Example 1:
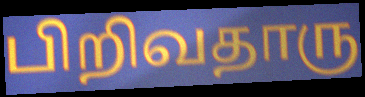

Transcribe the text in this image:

பிறிவதாரு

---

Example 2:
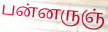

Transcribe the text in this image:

பன்னருஞ்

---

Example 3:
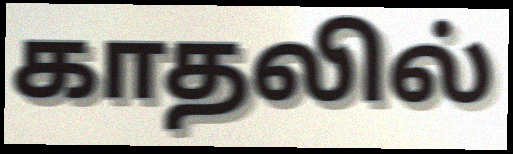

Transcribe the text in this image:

காதலில்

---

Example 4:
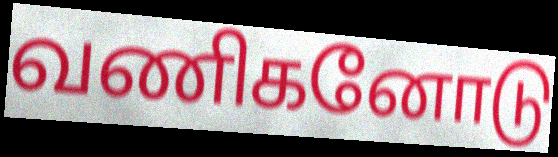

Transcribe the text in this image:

வணிகனோடு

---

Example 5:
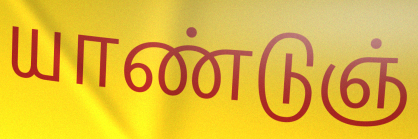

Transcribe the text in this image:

யாண்டுஞ்